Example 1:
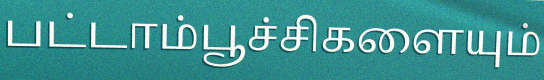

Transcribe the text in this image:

பட்டாம்பூச்சிகளையும்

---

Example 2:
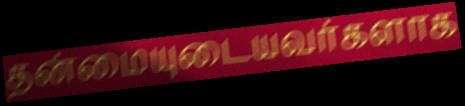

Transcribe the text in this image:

தன்மையுடையவர்களாக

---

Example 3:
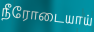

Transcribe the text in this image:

நீரோடையாய்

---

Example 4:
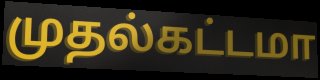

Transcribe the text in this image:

முதல்கட்டமா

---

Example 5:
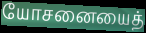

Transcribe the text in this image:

யோசனையைத்